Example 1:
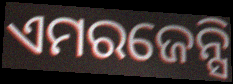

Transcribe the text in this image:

ଏମରଜେନ୍ସି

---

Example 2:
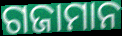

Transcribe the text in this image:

ଗଜାମାନ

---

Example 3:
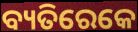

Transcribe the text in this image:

ବ୍ୟତିରେକେ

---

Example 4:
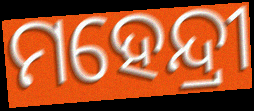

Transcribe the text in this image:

ମହେନ୍ଦ୍ରୀ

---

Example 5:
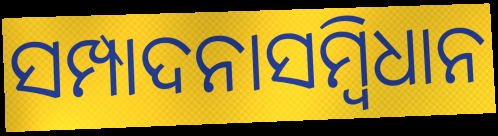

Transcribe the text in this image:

ସମ୍ପାଦନାସମ୍ବିଧାନ